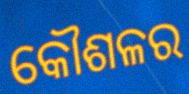
କୌଶଳର